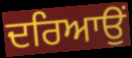
ਦਰਿਆਉਂ